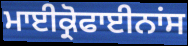
ਮਾਈਕ੍ਰੋਫਾਈਨਾਂਸ